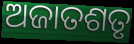
ଅଜାତଶତୃ